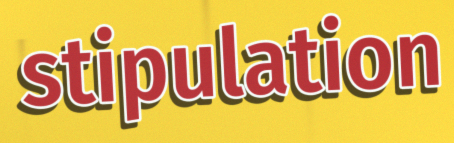
stipulation